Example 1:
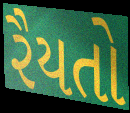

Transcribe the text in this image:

રૈયતો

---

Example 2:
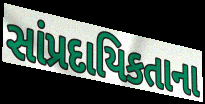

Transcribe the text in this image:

સાંપ્રદાયિકતાના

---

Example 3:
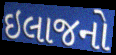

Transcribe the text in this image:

ઇલાજનો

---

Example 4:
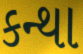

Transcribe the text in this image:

કન્થા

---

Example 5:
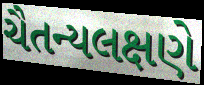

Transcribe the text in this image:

ચૈતન્યલક્ષણે